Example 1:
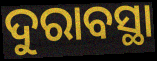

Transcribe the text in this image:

ଦୁରାବସ୍ଥା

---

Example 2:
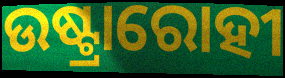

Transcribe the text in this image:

ଉଷ୍ଟ୍ରାରୋହୀ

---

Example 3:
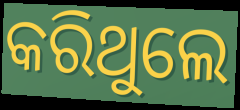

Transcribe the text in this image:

କରିଥୁଲେ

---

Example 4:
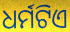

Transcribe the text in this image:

ଧର୍ମଟିଏ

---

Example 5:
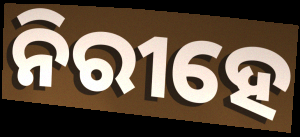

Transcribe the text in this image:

ନିରୀହେ